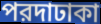
পরদাঢাকা